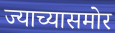
ज्याच्यासमोर